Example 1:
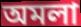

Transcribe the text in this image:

অমলা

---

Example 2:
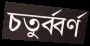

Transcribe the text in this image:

চতুর্ব্বর্ণ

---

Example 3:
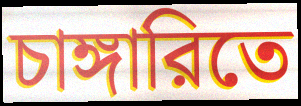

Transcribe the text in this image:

চাঙ্গারিতে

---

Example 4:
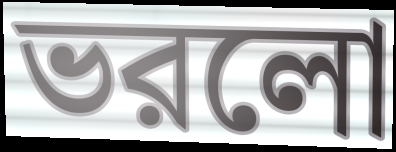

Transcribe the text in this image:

ভরলো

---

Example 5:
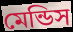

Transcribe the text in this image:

মেন্ডিস